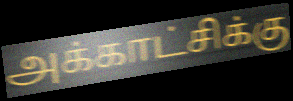
அக்காட்சிக்கு